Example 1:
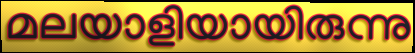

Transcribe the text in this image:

മലയാളിയായിരുന്നു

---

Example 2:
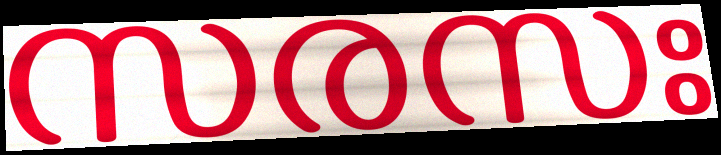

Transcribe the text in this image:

സരസഃ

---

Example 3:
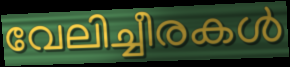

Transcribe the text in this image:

വേലിച്ചീരകൾ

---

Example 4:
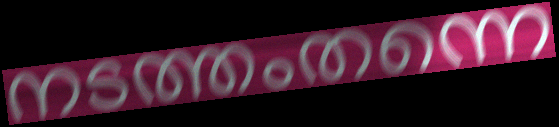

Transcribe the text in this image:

നടത്തംതന്നെ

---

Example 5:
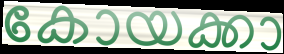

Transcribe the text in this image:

കോയക്കാ